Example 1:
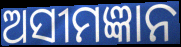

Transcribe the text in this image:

ଅସୀମଜ୍ଞାନ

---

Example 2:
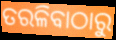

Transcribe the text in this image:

ତରଳିବାଠାରୁ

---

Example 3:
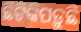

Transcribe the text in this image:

ଛିଟିକିପଡ଼ୁଛି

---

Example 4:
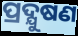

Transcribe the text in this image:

ପ୍ରଦ୍ଯୁଷଣ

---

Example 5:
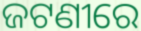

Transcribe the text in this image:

ଜଟଣୀରେ